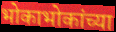
भोकाभोकांच्या